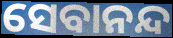
ସେବାନନ୍ଦ